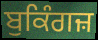
ਬੁਕਿੰਗਜ਼